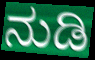
ನುಡಿ